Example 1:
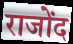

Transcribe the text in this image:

राजोंद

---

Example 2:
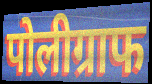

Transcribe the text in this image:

पोलीग्राफ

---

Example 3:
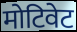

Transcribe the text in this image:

मोटिवेट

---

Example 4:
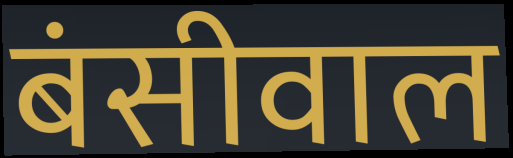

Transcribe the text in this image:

बंसीवाल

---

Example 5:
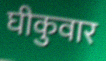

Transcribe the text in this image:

घीकुवार